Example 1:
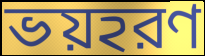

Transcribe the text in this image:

ভয়হরণ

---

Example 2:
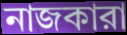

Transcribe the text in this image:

নাজকারা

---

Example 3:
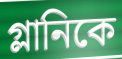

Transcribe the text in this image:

গ্লানিকে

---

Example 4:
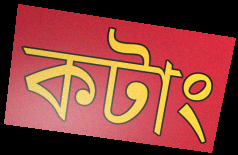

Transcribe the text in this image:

কটাং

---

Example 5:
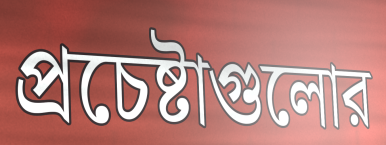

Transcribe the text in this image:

প্রচেষ্টাগুলোর